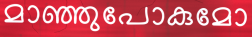
മാഞ്ഞുപോകുമോ